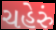
ચહેરું